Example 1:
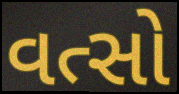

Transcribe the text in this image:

વત્સો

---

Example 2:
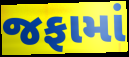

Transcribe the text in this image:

જફામાં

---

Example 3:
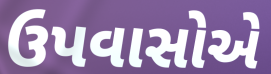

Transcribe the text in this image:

ઉપવાસોએ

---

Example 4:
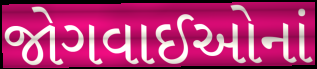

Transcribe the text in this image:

જોગવાઈઓનાં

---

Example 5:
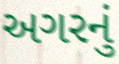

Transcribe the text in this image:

અગરનું